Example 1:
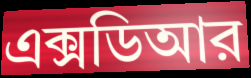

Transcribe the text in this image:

এক্সডিআর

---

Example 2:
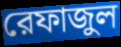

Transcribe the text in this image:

রেফাজুল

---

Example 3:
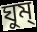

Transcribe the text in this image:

ঘুম্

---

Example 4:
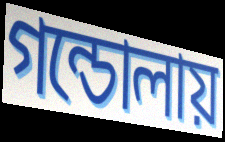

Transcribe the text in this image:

গন্ডোলায়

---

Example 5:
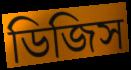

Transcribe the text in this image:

ডিজিস